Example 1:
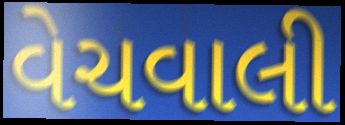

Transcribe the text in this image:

વેચવાલી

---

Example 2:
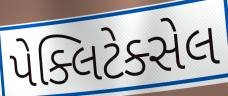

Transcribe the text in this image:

પેક્લિટેક્સેલ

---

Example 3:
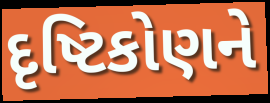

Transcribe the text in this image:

દૃષ્ટિકોણને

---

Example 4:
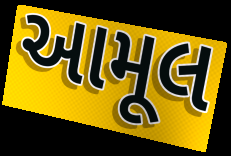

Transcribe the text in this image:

આમૂલ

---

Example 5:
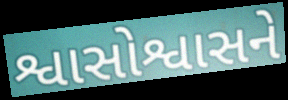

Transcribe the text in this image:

શ્વાસોશ્વાસને